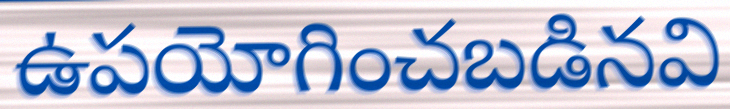
ఉపయోగించబడినవి